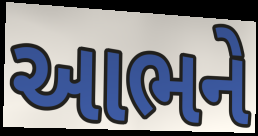
આભને